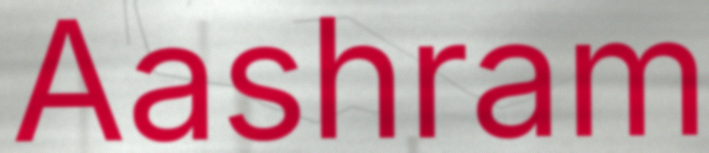
Aashram